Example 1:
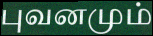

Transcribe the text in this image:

புவனமும்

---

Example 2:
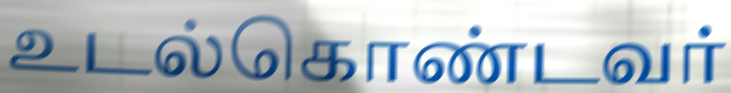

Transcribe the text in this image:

உடல்கொண்டவர்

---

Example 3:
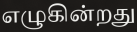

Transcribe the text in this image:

எழுகின்றது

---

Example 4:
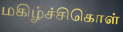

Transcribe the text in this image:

மகிழ்ச்சிகொள்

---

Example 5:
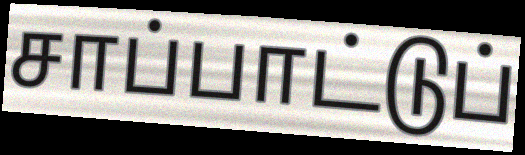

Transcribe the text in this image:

சாப்பாட்டுப்